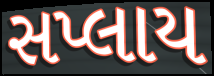
સપ્લાય